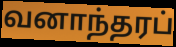
வனாந்தரப்